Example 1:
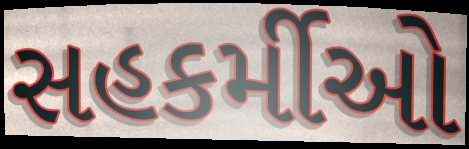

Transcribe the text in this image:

સહકર્મીઓ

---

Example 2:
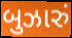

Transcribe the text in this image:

બુઝારું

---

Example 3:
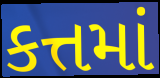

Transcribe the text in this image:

કત્તમાં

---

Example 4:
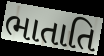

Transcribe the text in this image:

ભાતાતિ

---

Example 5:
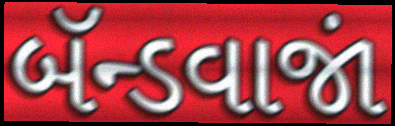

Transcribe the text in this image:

બૅન્ડવાજાં